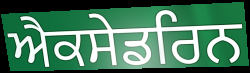
ਐਕਸੇਡਰਿਨ